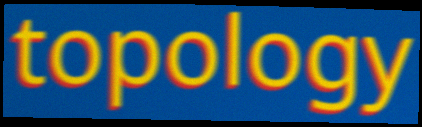
topology